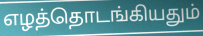
எழத்தொடங்கியதும்